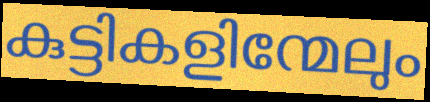
കുട്ടികളിന്മേലും